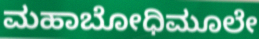
ಮಹಾಬೋಧಿಮೂಲೇ